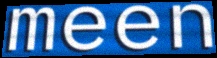
meen